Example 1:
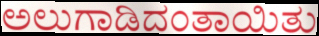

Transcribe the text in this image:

ಅಲುಗಾಡಿದಂತಾಯಿತು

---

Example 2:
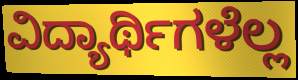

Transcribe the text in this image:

ವಿದ್ಯಾರ್ಥಿಗಳೆಲ್ಲ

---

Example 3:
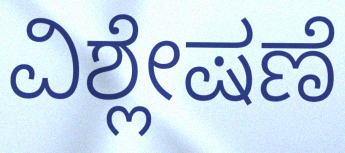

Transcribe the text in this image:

ವಿಶ್ಲೇಷಣೆ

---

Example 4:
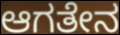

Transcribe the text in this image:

ಆಗತೇನ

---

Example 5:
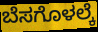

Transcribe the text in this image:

ಬೆಸಗೊಳಲ್ಕೆ